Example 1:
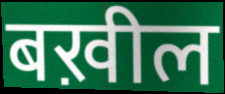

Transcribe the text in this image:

बख़ील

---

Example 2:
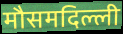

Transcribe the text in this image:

मौसमदिल्ली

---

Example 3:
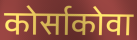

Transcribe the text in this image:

कोर्साकोवा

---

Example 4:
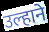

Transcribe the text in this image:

उल्हाने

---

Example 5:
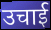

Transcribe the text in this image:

उचाई